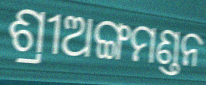
ଶ୍ରୀଅଙ୍ଗମଣ୍ଡନ